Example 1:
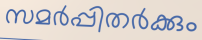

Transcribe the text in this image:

സമർപ്പിതർക്കും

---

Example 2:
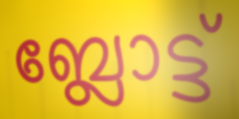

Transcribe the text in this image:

ബ്ലോട്ട്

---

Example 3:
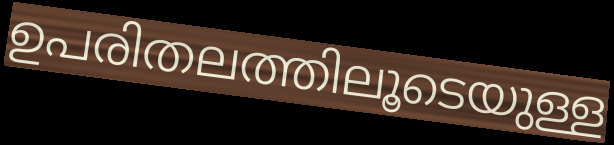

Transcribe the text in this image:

ഉപരിതലത്തിലൂടെയുള്ള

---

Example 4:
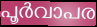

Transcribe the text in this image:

പൂർവാപര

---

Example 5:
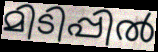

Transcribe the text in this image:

മിടിപ്പിൽ